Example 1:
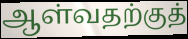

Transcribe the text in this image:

ஆள்வதற்குத்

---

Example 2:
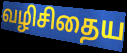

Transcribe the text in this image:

வழிசிதைய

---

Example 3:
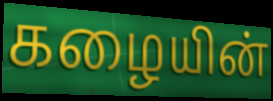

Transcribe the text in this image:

கழையின்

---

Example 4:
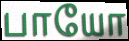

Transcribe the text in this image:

பாயோ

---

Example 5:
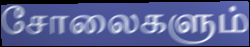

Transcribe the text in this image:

சோலைகளும்